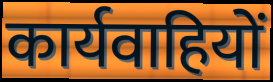
कार्यवाहियों